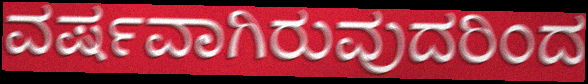
ವರ್ಷವಾಗಿರುವುದರಿಂದ